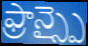
ఫ్రాన్స్పై